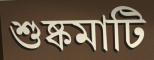
শুষ্কমাটি